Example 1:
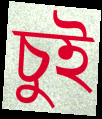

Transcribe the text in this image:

চুই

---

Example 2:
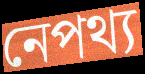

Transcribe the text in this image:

নেপথ্য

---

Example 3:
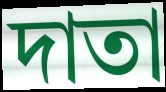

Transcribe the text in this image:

দাতা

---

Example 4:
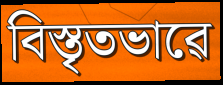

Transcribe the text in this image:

বিস্তৃতভাৱে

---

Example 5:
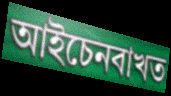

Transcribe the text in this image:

আইচেনবাখত